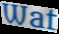
Wat